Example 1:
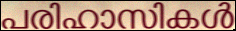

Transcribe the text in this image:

പരിഹാസികൾ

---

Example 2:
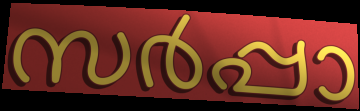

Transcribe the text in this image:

സർപ്പാ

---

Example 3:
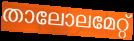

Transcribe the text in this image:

താലോലമേറ്റ്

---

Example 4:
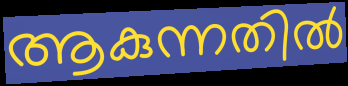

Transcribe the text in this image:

ആകുന്നതിൽ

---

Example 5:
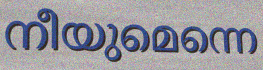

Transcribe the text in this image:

നീയുമെന്നെ